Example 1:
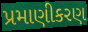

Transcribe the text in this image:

પ્રમાણીકરણ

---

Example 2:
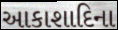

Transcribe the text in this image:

આકાશાદિના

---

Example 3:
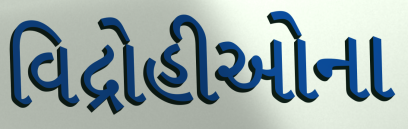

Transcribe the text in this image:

વિદ્રોહીઓના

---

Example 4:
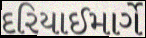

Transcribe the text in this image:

દરિયાઈમાર્ગે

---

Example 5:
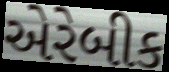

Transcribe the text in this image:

એરેબીક